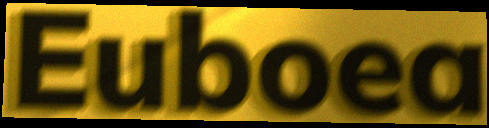
Euboea